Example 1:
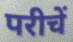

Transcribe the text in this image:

परीचें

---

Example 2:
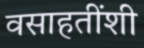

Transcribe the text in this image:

वसाहतींशी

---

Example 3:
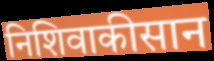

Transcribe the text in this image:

निशिवाकीसान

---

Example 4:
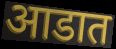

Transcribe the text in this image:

आडात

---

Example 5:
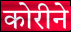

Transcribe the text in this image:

कोरीने